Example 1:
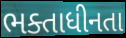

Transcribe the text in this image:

ભક્તાધીનતા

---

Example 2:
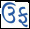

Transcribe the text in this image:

ઉફ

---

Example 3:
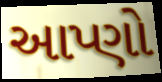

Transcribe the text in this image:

આપ્ણો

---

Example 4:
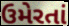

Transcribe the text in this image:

ઉમેરતાં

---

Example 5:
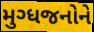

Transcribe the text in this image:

મુગ્ધજનોને